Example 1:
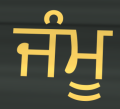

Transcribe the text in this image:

ਜੰਮੂ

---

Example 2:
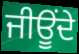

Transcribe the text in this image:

ਜੀਊਂਦੇ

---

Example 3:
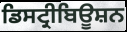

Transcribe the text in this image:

ਡਿਸਟ੍ਰੀਬਿਊਸ਼ਨ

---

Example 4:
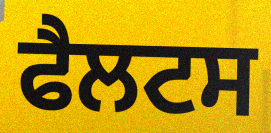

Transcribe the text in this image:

ਫੈਲਟਸ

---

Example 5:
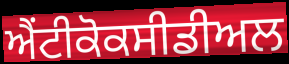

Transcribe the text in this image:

ਐਂਟੀਕੋਕਸੀਡੀਅਲ